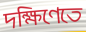
দক্ষিণেতে